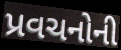
પ્રવચનોની